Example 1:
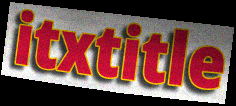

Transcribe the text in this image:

itxtitle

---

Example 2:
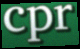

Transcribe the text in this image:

cpr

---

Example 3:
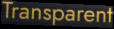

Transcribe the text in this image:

Transparent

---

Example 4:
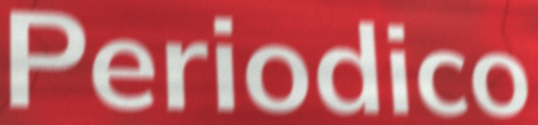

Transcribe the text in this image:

Periodico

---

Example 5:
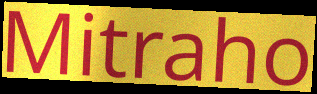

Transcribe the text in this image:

Mitraho